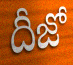
దీజో